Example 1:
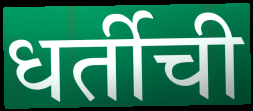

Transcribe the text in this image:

धर्तीची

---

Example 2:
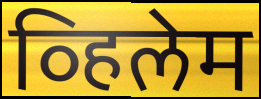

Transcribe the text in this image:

व्हिलेम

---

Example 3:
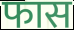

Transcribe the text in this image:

फास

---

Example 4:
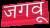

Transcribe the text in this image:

जगवू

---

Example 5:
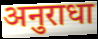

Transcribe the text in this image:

अनुराधा